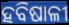
ହବିଷାଳୀ